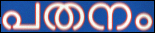
പതനം